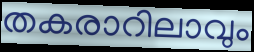
തകരാറിലാവും